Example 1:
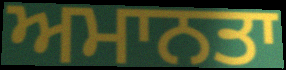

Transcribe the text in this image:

ਅਮਾਨਤਾ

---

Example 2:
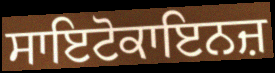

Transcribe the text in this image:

ਸਾਇਟੋਕਾਇਨਜ਼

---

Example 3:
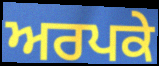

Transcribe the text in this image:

ਅਰਪਕੇ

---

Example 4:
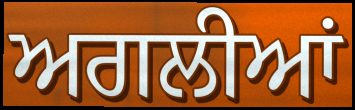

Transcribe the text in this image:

ਅਗਲੀਆਂ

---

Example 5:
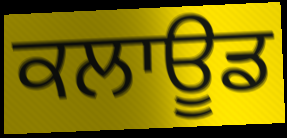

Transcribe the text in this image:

ਕਲਾਊਡ